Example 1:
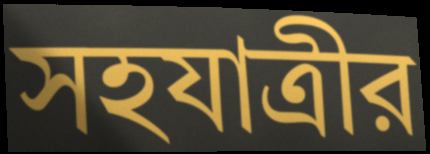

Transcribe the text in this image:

সহযাত্রীর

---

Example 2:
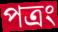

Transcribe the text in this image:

পত্রং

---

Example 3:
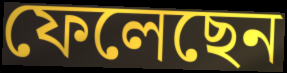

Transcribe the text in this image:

ফেলেছেন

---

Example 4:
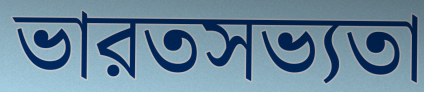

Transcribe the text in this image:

ভারতসভ্যতা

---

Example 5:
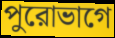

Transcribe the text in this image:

পুরোভাগে